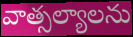
వాత్సల్యాలను